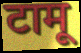
टामू